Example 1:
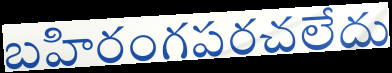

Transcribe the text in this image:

బహిరంగపరచలేదు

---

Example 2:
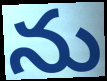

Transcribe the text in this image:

ను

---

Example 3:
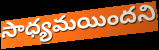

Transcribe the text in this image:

సాధ్యమయిందని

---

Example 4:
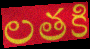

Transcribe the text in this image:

లతకి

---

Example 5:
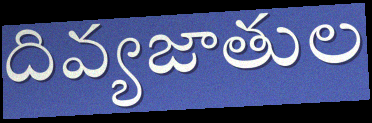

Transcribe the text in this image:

దివ్యజాతుల